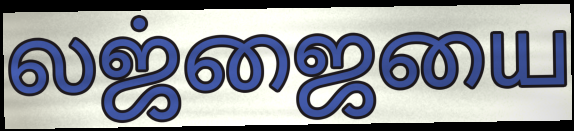
லஜ்ஜையை